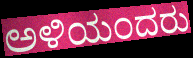
ಅಳಿಯಂದರು